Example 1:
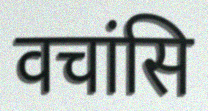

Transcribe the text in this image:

वचांसि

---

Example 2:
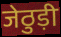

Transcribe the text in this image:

जेठुड़ी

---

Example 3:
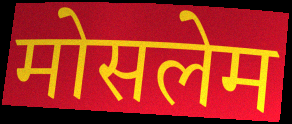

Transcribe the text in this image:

मोसलेम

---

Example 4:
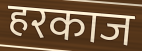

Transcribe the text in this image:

हरकाज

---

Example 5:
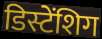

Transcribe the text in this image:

डिस्टेंशिग